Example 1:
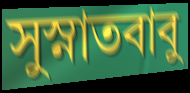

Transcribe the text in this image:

সুস্নাতবাবু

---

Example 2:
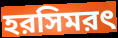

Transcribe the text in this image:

হরসিমরৎ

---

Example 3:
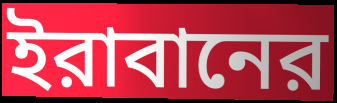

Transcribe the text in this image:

ইরাবানের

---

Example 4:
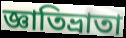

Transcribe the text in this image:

জ্ঞাতিভ্রাতা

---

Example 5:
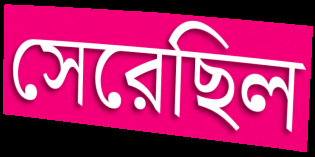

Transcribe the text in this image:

সেরেছিল